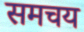
समचय